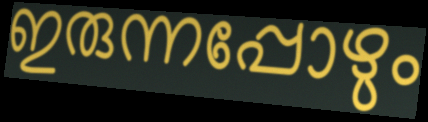
ഇരുന്നപ്പോഴും